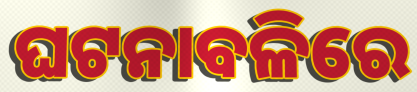
ଘଟନାବଳିରେ